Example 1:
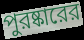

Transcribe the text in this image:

পুরষ্কারের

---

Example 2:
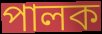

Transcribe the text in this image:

পালক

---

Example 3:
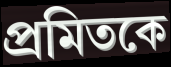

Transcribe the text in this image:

প্রমিতকে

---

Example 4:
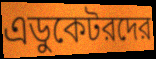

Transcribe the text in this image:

এডুকেটরদের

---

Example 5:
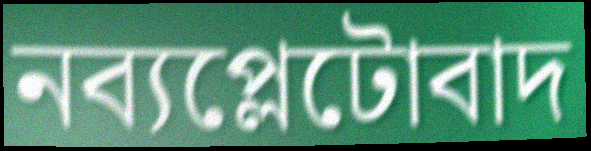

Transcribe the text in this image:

নব্যপ্লেটোবাদ